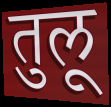
तुलू